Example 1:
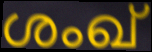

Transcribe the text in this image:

ശംഖ്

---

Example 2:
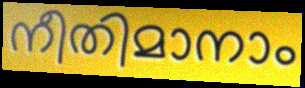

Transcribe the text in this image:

നീതിമാനാം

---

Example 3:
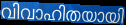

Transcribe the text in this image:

വിവാഹിതയായി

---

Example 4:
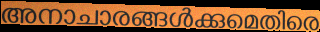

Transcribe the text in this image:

അനാചാരങ്ങൾക്കുമെതിരെ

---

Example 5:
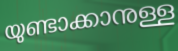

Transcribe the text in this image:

യുണ്ടാക്കാനുള്ള